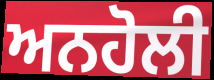
ਅਨਹੋਲੀ